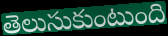
తెలుసుకుంటుంది